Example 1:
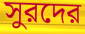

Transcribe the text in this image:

সুরদের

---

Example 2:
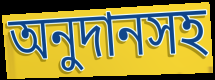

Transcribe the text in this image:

অনুদানসহ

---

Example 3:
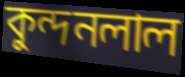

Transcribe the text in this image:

কুন্দনলাল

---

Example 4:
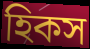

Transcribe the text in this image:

হিকস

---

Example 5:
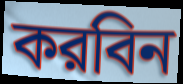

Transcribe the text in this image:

করবিন